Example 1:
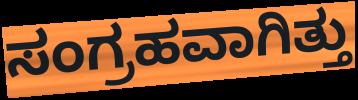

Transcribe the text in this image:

ಸಂಗ್ರಹವಾಗಿತ್ತು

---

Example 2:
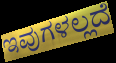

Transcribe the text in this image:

ಇವುಗಳಲ್ಲದೆ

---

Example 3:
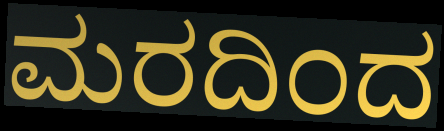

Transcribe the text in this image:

ಮರದಿಂದ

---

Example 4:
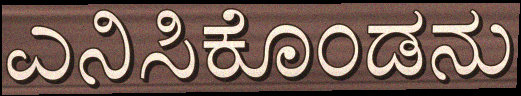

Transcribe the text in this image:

ಎನಿಸಿಕೊಂಡನು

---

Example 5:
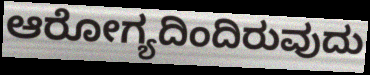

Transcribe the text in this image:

ಆರೋಗ್ಯದಿಂದಿರುವುದು